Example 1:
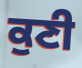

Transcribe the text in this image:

ਕੁਣੀ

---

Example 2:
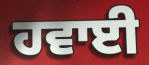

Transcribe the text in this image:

ਹਵਾਈ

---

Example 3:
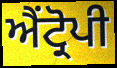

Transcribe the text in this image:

ਐਂਟ੍ਰੋਪੀ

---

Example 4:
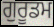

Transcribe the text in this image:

ਗੁਰੂਡਮ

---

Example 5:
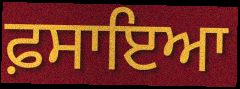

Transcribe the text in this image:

ਫ਼ਸਾਇਆ